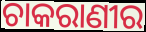
ଚାକରାଣୀର